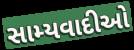
સામ્યવાદીઓ